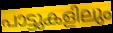
പാട്ടുകളിലും